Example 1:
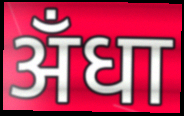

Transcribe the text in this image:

अँधा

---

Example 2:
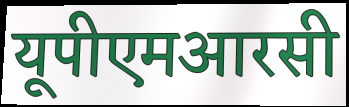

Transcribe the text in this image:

यूपीएमआरसी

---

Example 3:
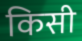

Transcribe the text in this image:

किसी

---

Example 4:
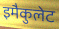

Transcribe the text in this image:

इमैकुलेट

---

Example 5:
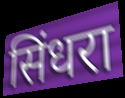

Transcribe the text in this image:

सिंधरा